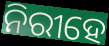
ନିରୀହେ